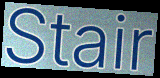
Stair